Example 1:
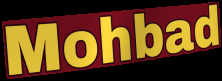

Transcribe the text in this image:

Mohbad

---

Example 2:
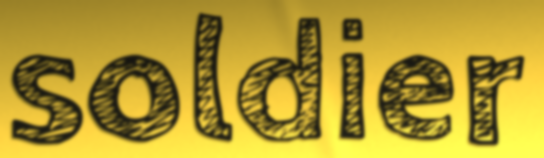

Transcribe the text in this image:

soldier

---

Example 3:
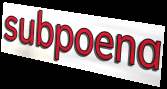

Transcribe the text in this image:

subpoena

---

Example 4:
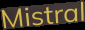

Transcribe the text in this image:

Mistral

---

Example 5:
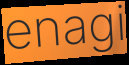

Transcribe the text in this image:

enagi